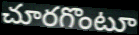
చూరగొంటూ